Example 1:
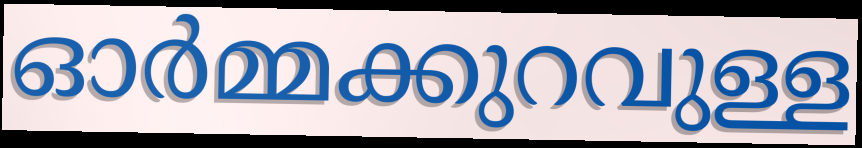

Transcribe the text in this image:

ഓർമ്മക്കുറവുള്ള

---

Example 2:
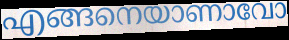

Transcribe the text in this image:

എങ്ങനെയാണാവോ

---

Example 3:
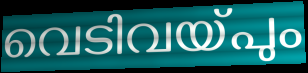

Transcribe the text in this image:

വെടിവയ്പും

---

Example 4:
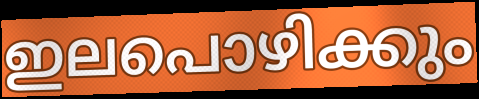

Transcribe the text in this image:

ഇലപൊഴിക്കും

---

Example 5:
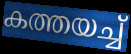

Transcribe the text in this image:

കത്തയച്ച്